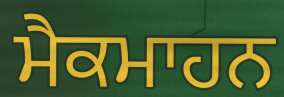
ਮੈਕਮਾਹਨ